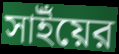
সাইঁয়ের